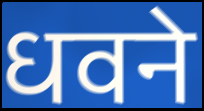
धवने